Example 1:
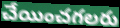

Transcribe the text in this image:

చేయించగలరు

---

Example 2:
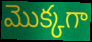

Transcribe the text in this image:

మొక్కగా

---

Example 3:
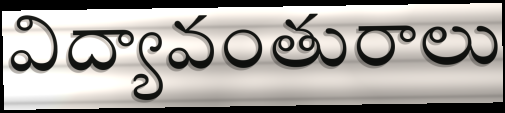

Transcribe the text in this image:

విద్యావంతురాలు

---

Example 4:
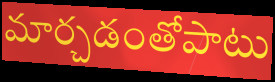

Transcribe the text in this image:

మార్చడంతోపాటు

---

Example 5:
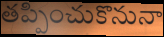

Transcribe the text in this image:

తప్పించుకొనునా